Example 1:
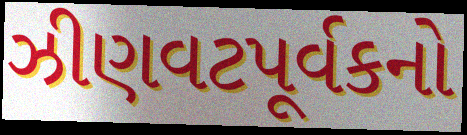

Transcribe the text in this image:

ઝીણવટપૂર્વકનો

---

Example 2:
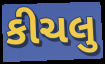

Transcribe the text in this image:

કીચલુ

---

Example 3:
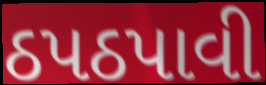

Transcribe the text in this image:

ઠપઠપાવી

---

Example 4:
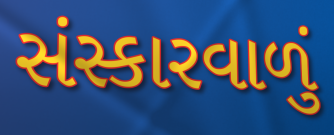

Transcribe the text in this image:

સંસ્કારવાળું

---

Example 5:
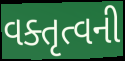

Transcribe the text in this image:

વક્તૃત્વની